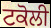
ਟਕੋਲੀ